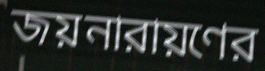
জয়নারায়ণের